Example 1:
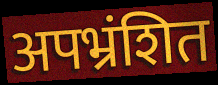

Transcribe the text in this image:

अपभ्रंशित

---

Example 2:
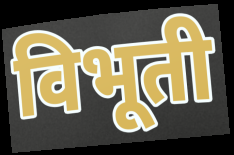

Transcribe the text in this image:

विभूती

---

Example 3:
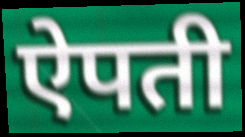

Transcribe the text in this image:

ऐपती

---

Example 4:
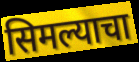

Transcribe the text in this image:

सिमल्याचा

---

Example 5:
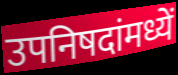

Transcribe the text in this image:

उपनिषदांमध्यें